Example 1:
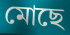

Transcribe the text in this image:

মোছে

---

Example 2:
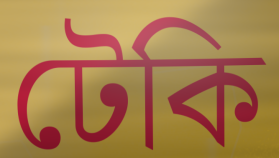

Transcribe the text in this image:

টেকি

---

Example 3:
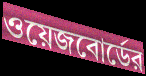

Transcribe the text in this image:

ওয়েজবোর্ডের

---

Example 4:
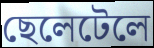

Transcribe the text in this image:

ছেলেটেলে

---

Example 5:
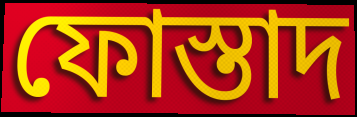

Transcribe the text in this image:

ফোস্তাদ